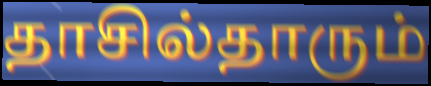
தாசில்தாரும்